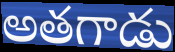
అతగాడు